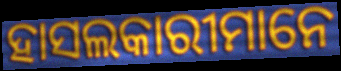
ହାସଲକାରୀମାନେ